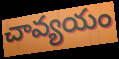
చావ్యయం